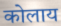
कोलाय